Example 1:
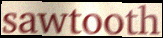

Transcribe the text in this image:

sawtooth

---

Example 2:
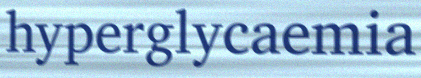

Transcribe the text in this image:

hyperglycaemia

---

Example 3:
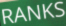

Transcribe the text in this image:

RANKS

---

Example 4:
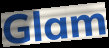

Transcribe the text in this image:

Glam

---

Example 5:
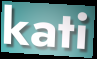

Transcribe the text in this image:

kati